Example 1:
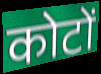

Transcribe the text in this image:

कोटों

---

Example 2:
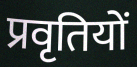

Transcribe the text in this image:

प्रवृतियों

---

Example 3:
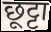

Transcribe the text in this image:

छूट्टा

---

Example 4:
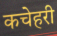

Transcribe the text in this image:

कचेहरी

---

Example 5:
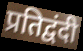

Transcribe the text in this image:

प्रतिद्वंदी